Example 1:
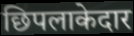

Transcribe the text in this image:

छिपलाकेदार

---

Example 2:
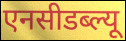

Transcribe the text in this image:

एनसीडब्ल्यू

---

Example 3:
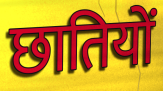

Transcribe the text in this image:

छातियों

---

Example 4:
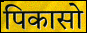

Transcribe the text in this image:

पिकासो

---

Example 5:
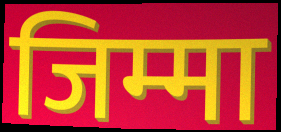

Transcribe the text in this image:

जिम्मा